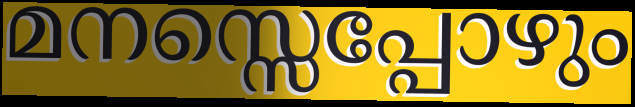
മനസ്സെപ്പോഴും